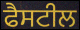
ਫੈਸਟੀਲ